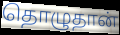
தொழுதான்